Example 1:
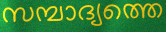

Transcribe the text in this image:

സമ്പാദ്യത്തെ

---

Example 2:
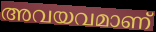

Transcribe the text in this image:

അവയവമാണ്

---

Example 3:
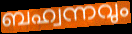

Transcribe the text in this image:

ബഹ്വന്നവും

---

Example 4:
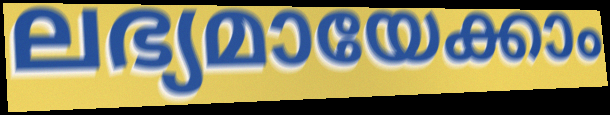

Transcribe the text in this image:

ലഭ്യമായേക്കാം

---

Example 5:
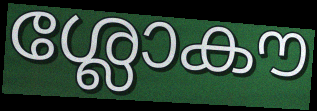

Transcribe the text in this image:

ശ്ലോകൗ